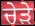
ਚੇੜੇ